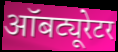
ऑबट्यूरेटर